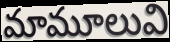
మామూలువి